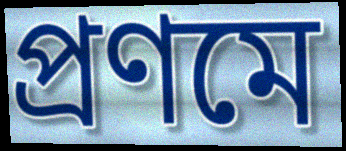
প্রণমে